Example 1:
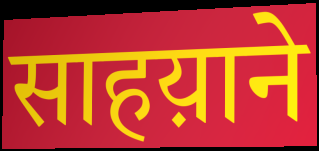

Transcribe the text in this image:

साहय़ाने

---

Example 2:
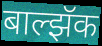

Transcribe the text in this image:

बाल्झॅक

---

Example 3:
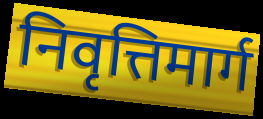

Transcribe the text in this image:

निवृत्तिमार्ग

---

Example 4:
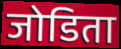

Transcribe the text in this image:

जोडिता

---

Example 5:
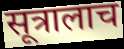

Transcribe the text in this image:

सूत्रालाच